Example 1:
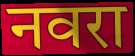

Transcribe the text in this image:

नवरा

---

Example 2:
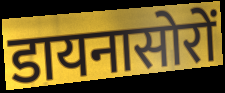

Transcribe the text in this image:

डायनासोरों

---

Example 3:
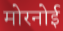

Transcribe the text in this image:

मोरनोई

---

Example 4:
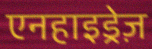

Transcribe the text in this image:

एनहाइड्रेज़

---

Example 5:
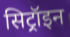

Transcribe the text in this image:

सिट्रॉइन